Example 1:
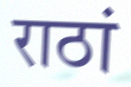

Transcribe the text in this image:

राठां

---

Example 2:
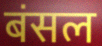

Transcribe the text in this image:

बंसल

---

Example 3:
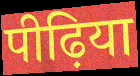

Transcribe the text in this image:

पीढ़िया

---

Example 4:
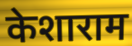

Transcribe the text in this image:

केशाराम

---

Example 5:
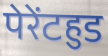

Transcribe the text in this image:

पेरेंटहुड